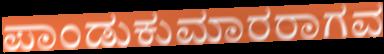
ಪಾಂಡುಕುಮಾರರಾಗವ